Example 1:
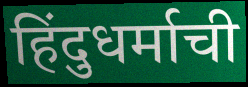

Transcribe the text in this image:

हिंदुधर्माची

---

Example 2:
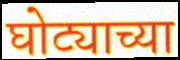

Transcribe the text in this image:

घोट्याच्या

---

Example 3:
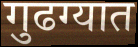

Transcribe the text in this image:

गुढग्यात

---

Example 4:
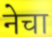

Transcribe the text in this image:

नेचा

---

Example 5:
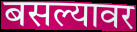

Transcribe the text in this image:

बसल्यावर